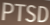
PTSD